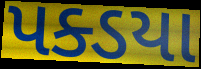
પક્ડયા